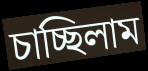
চাচ্ছিলাম